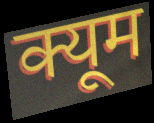
क्यूम